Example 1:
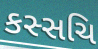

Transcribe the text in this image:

કસ્સચિ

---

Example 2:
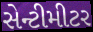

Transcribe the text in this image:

સેન્ટીમીટર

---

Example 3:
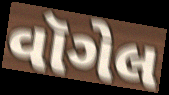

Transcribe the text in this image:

વૉગેલ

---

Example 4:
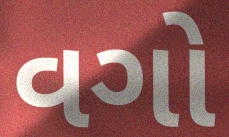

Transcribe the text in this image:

વગો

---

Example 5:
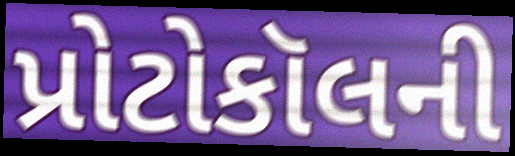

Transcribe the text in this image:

પ્રોટોકૉલની